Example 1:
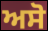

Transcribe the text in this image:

ਅਸੋ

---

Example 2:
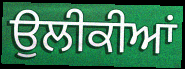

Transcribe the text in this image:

ਉਲੀਕੀਆਂ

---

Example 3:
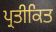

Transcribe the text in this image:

ਪ੍ਰਤੀਕਿਤ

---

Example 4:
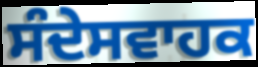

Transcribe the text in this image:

ਸੰਦੇਸਵਾਹਕ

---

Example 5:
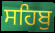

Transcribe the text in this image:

ਸਹਿਬੁ